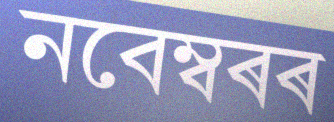
নবেম্বৰৰ